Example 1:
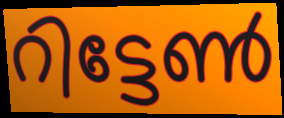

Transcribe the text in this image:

റിട്ടേൺ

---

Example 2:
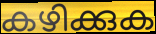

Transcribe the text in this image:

കഴിക്കുക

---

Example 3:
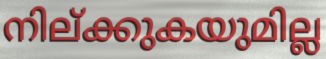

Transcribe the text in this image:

നില്ക്കുകയുമില്ല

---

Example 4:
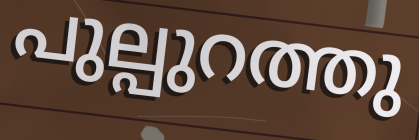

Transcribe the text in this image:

പുല്പുറത്തു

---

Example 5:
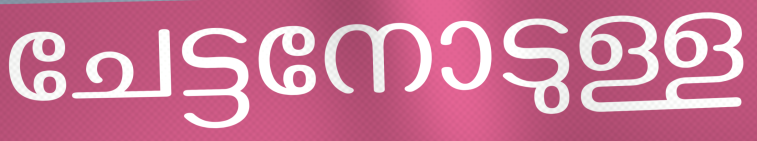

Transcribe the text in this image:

ചേട്ടനോടുള്ള